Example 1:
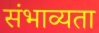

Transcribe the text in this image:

संभाव्यता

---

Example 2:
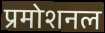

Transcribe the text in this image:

प्रमोशनल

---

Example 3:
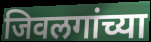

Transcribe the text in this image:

जिवलगांच्या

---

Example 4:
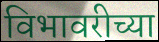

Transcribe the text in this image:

विभावरीच्या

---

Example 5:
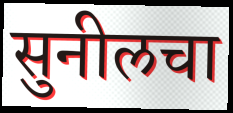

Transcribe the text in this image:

सुनीलचा